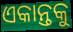
ଏକାନ୍ତକୁ